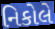
નિકોલે